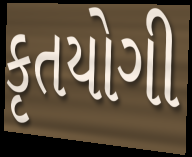
કૃતયોગી